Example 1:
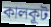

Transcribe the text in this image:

কালকূট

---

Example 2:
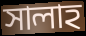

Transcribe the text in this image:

সালাহ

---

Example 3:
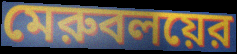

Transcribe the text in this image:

মেরুবলয়ের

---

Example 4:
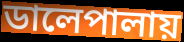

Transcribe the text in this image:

ডালেপালায়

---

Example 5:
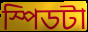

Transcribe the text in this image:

স্পিডটা